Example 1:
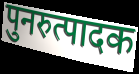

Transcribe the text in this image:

पुनरुत्पादक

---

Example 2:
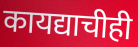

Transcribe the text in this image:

कायद्याचीही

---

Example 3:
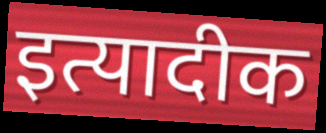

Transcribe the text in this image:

इत्यादीक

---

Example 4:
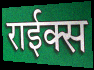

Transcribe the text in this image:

राईक्स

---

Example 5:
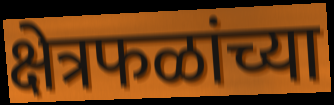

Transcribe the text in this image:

क्षेत्रफळांच्या